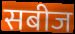
सबीज